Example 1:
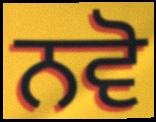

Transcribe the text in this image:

ਨਵੋ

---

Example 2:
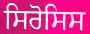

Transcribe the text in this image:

ਸਿਰੋਸਿਸ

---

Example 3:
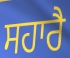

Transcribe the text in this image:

ਸਹਾਰੈ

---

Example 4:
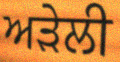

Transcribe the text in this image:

ਅੜੇਲੀ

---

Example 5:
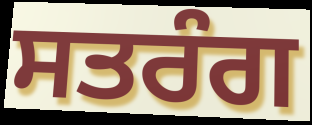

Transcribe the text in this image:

ਸਤਰੰਗ